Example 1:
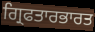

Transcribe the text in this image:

ਗ੍ਰਿਫਤਾਰਭਾਰਤ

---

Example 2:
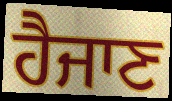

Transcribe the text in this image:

ਹੈਜਾਣ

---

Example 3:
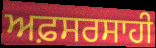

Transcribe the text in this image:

ਅਫ਼ਸਰਸਾਹੀ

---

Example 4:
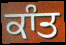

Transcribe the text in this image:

ਕਾੰਤ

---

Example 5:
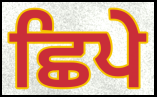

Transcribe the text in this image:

ਛਿਪੇ